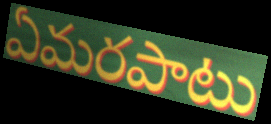
ఏమరపాటు